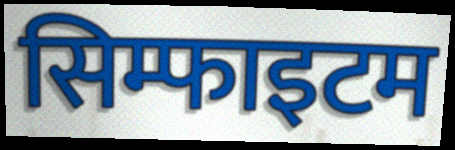
सिम्फाइटम